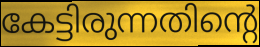
കേട്ടിരുന്നതിന്റെ